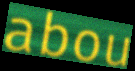
abou